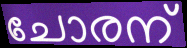
ചോരന്